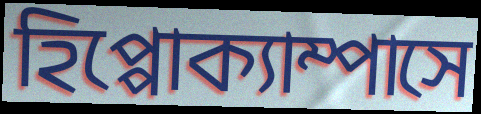
হিপ্পোক্যাম্পাসে